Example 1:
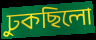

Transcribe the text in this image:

ঢুকছিলো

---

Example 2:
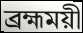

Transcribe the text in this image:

ব্রহ্মময়ী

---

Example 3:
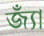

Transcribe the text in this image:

জ্যাঁ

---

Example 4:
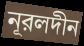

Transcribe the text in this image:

নূরলদীন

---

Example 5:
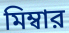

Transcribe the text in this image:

মিম্বার